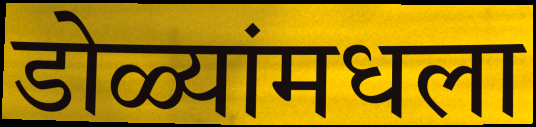
डोळ्यांमधला